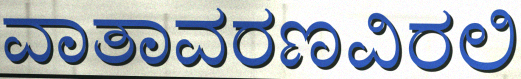
ವಾತಾವರಣವಿರಲಿ